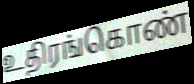
உதிரங்கொண்